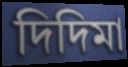
দিদিমা